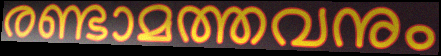
രണ്ടാമത്തവനും